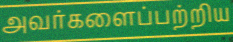
அவர்களைப்பற்றிய